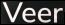
Veer